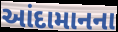
આંદામાનના